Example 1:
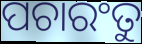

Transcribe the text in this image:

ପଚାରଂତୁ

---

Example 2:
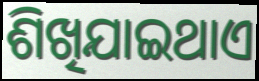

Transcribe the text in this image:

ଶିଖିଯାଇଥାଏ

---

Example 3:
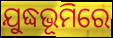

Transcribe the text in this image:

ଯୁଦ୍ଧଭୂମିରେ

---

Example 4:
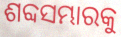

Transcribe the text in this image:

ଶବ୍ଦସମ୍ଭାରକୁ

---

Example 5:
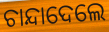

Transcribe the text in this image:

ଚାନ୍ଦାଦେଲେ